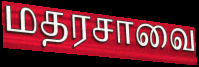
மதரசாவை